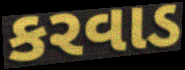
કરવાડ